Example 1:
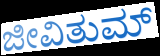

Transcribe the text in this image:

ಜೀವಿತುಮ್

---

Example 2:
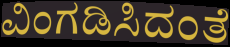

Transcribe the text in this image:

ವಿಂಗಡಿಸಿದಂತೆ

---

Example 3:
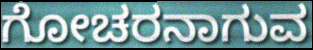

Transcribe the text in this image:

ಗೋಚರನಾಗುವ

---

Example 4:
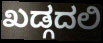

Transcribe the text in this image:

ಖಡ್ಗದಲಿ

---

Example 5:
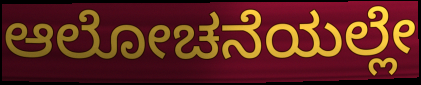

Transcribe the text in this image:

ಆಲೋಚನೆಯಲ್ಲೇ